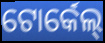
ଟୋର୍କେଲ୍